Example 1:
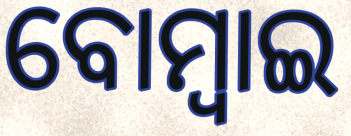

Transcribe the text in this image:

ବୋମ୍ୱାଇ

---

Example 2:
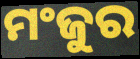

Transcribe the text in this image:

ମଂଜୁର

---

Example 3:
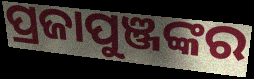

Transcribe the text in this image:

ପ୍ରଜାପୁଞ୍ଜଙ୍କର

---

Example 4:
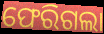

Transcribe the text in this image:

ଫେରିଗଲା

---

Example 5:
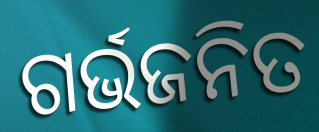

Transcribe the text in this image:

ଗର୍ଭଜନିତ